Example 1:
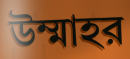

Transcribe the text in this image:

উম্মাহর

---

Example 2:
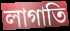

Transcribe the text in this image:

লাগাতি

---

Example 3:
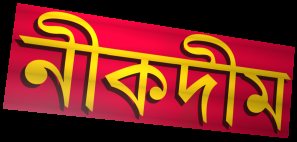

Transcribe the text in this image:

নীকদীম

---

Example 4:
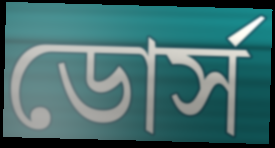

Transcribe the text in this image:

ডোর্স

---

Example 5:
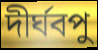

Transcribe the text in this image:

দীর্ঘবপু